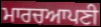
ਮਾਰਚਆਪਣੀ